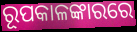
ରୂପକାଳଙ୍କାରରେ